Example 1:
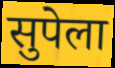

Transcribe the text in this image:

सुपेला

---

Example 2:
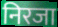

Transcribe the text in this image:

निरजा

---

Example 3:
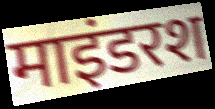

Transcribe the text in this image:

माइंडरश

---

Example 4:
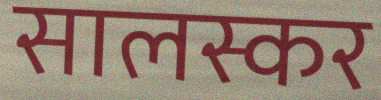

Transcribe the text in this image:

सालस्कर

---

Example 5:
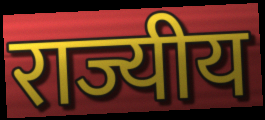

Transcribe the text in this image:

राज्यीय